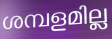
ശമ്പളമില്ല